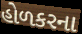
હોળકરના